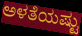
ಅಳತೆಯಷ್ಟು